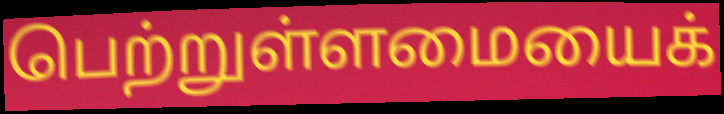
பெற்றுள்ளமையைக்